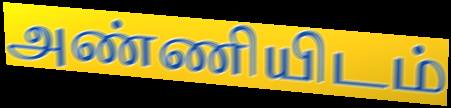
அண்ணியிடம்